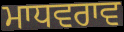
ਮਾਧਵਰਾਵ